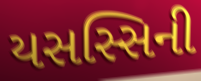
યસસ્સિની